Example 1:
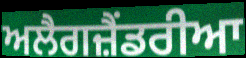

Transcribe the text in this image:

ਅਲੈਗਜ਼ੈਂਡਰੀਆ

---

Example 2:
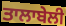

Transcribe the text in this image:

ਤਾਲਾਬੇਲੀ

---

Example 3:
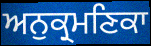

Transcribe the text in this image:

ਅਨੁਕ੍ਰਮਣਿਕਾ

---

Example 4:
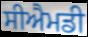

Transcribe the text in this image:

ਸੀਐਮਡੀ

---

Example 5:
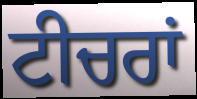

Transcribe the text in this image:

ਟੀਚਰਾਂ